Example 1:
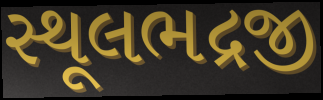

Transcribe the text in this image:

સ્થૂલભદ્રજી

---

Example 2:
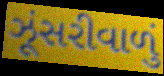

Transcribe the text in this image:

ઝૂંસરીવાળું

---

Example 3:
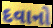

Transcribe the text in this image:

દવાનો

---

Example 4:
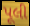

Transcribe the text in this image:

પૂલી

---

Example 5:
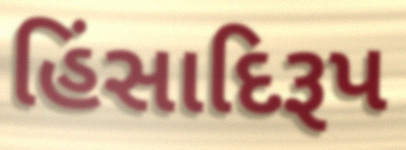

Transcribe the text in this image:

હિંસાદિરૂપ